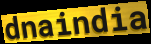
dnaindia